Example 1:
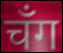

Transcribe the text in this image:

चँग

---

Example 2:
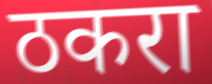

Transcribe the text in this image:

ठकरा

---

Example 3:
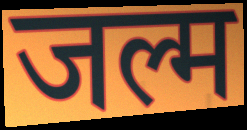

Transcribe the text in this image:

जल्म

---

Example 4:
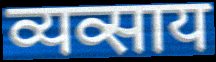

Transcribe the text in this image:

व्यव्साय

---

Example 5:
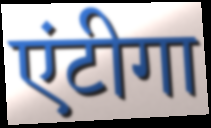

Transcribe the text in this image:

एंटीगा